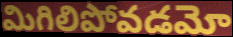
మిగిలిపోవడమో